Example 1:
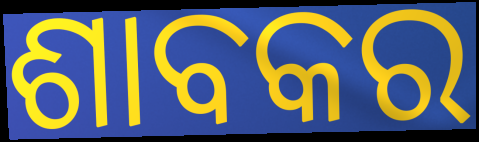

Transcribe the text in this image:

ଶାବକର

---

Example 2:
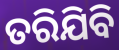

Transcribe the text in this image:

ତରିଯିବି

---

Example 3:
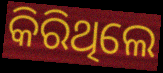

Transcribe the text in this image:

କିରିଥିଲେ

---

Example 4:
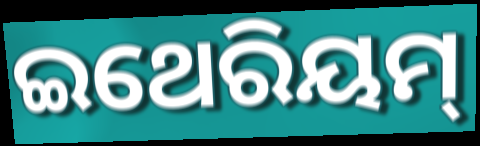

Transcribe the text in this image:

ଇଥେରିୟମ୍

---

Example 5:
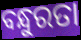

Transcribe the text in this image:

ବନ୍ଧୁରତା